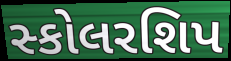
સ્કોલરશિપ